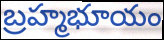
బ్రహ్మభూయం